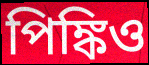
পিঙ্কিও